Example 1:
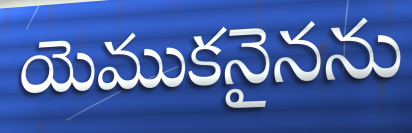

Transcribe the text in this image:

యెముకనైనను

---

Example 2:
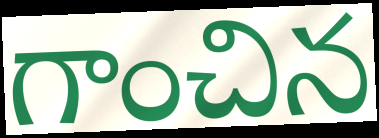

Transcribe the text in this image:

గాంచిన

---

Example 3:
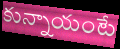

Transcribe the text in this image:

కున్నాయంటే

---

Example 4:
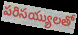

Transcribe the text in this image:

పరిసయ్యులతో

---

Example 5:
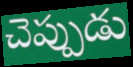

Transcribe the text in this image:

చెప్పుడు